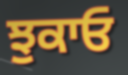
ਝੁਕਾਓ